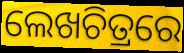
ଲେଖଚିତ୍ରରେ